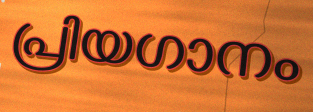
പ്രിയഗാനം